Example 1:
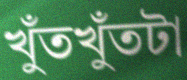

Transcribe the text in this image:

খুঁতখুঁতটা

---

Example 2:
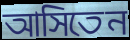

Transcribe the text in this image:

আসিতেন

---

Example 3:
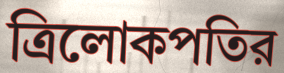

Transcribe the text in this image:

ত্রিলোকপতির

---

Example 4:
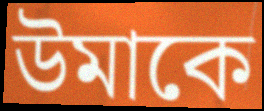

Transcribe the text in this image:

উমাকে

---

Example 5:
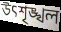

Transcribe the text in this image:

উৎশৃঙ্খল